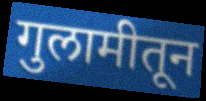
गुलामीतून